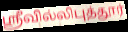
ஸ்ரீவில்லிபுத்தூர்